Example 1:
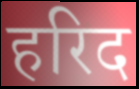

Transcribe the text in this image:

हरिद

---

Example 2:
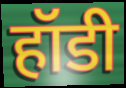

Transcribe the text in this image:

हॉडी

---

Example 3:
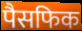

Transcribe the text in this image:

पैसफिक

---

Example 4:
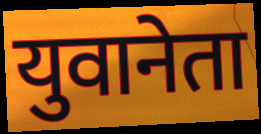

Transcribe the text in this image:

युवानेता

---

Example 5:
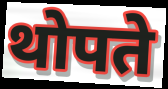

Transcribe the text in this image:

थोपते